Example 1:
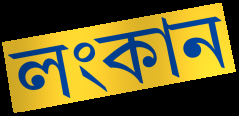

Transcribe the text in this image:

লংকান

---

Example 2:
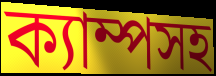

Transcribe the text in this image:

ক্যাম্পসহ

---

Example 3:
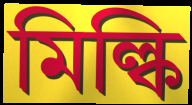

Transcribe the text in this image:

মিল্কি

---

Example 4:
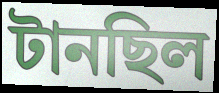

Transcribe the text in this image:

টানছিল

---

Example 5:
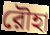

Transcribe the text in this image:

রৌহা